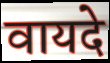
वायदे